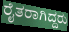
ರೈತರಾಗಿದ್ದರು